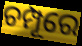
ଚମ୍ପୂରେ